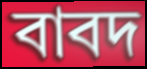
বাবদ